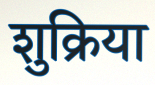
शुक्रिया